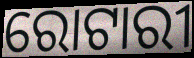
ରୋଟାରୀ